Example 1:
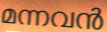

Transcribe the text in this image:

മന്നവൻ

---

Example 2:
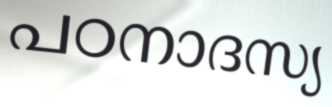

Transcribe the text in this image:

പഠനാദസ്യ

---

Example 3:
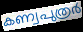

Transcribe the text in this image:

കണ്വപുത്രർ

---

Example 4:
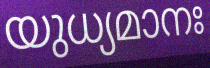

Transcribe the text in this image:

യുധ്യമാനഃ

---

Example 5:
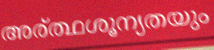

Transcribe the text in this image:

അര്ത്ഥശൂന്യതയും